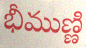
భీముణ్ణి